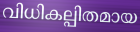
വിധികല്പിതമായ